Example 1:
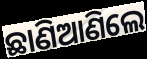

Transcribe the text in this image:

ଛାଣିଆଣିଲେ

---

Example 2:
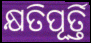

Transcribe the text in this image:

କ୍ଷତିପୂର୍ତ୍ତି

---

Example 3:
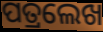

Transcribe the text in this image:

ପତ୍ରଲେଖ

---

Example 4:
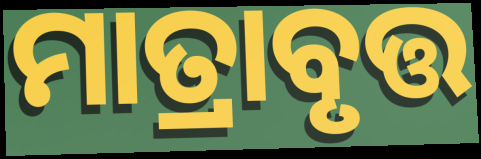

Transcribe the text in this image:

ମାତ୍ରାବୃତ୍ତ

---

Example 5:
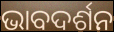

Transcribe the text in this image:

ଭାବଦର୍ଶନ